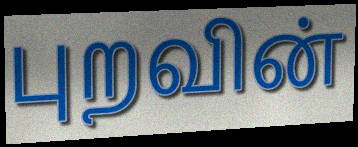
புறவின்